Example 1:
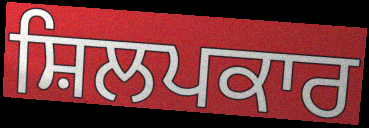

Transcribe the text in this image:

ਸ਼ਿਲਪਕਾਰ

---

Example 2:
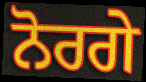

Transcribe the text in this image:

ਨੋਰਗੇ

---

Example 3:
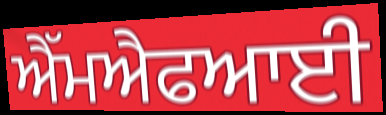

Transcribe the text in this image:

ਐੱਮਐਫਆਈ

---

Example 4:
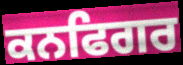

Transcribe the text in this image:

ਕਨਫਿਗਰ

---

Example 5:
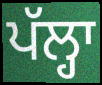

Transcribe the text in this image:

ਪੱਲ੍ਹਾ